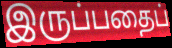
இருப்பதைப்